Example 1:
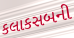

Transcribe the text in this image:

કલાકસબની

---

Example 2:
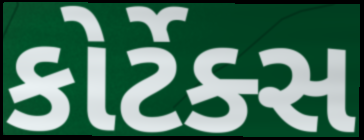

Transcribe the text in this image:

કોર્ટેક્સ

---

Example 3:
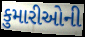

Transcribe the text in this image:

કુમારીઓની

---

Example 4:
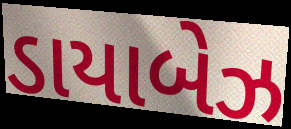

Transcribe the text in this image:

ડાયાબેઝ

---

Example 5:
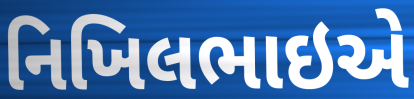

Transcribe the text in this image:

નિખિલભાઇએ